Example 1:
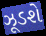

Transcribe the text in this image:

ઝૂડશે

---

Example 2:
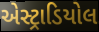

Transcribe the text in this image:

એસ્ટ્રાડિયોલ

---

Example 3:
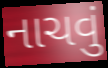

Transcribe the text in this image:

નાચવું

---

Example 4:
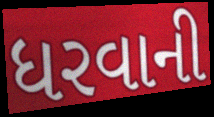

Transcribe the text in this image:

ધરવાની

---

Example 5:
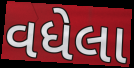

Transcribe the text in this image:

વધેલા